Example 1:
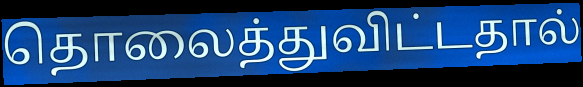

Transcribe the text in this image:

தொலைத்துவிட்டதால்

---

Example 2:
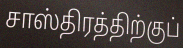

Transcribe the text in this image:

சாஸ்திரத்திற்குப்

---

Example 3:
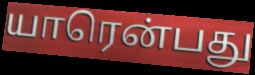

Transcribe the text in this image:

யாரென்பது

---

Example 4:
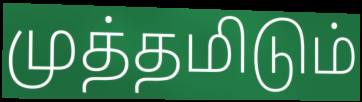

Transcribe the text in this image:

முத்தமிடும்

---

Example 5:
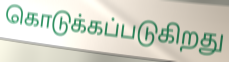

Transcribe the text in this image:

கொடுக்கப்படுகிறது